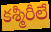
కశ్మీరీలే